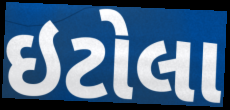
ઇટોલા